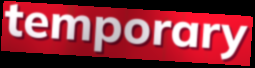
temporary